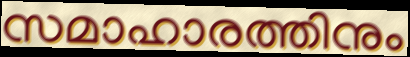
സമാഹാരത്തിനും